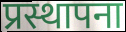
प्रस्थापना